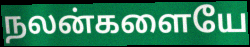
நலன்களையே